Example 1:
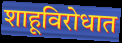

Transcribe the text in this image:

शाहूविरोधात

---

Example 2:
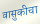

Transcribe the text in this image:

वासुकीचा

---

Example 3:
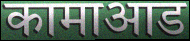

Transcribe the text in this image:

कामाआड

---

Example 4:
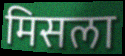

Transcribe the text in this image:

मिसला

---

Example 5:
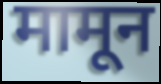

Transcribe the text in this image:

मामून